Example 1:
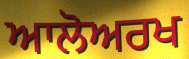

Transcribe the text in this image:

ਆਲੋਅਰਖ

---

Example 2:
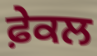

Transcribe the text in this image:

ਫ਼ੇਕਲ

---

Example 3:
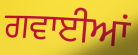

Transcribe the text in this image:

ਗਵਾਈਆਂ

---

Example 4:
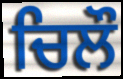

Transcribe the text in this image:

ਚਿਲੌ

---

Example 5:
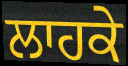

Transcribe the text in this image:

ਲਾਹਕੇ